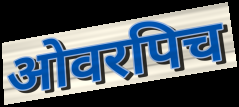
ओवरपिच